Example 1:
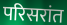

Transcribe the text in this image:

परिसरांत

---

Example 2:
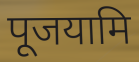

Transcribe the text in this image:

पूजयामि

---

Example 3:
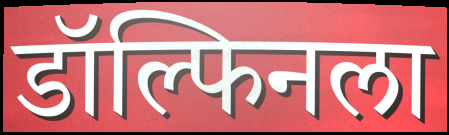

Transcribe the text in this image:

डॉल्फिनला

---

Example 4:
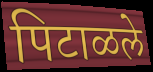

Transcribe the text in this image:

पिटाळले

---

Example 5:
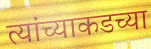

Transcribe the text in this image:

त्यांच्याकडच्या